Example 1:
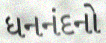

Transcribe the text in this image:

ધનનંદનો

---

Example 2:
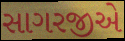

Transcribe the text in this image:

સાગરજીએ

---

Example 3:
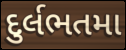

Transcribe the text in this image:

દુર્લભતમા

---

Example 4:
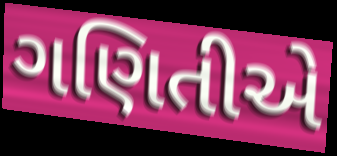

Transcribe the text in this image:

ગણિતીએ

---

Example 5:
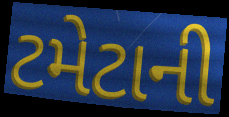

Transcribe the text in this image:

ટમેટાની